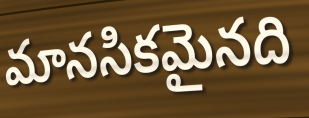
మానసికమైనది